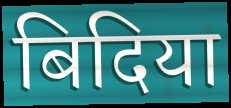
बिदिया